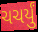
ચચર્યું